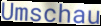
Umschau